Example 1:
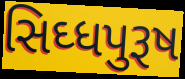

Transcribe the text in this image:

સિઘ્ધપુરૂષ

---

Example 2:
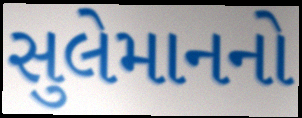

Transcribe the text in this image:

સુલેમાનનો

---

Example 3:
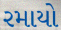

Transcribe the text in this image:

રમાયો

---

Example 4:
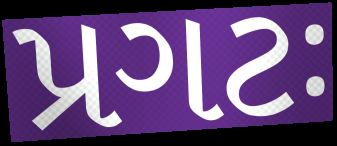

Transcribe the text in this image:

પ્રગટઃ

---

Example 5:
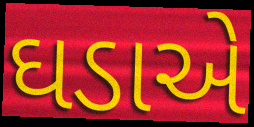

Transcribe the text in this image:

ઘડાએ